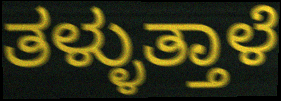
ತಳ್ಳುತ್ತಾಳೆ